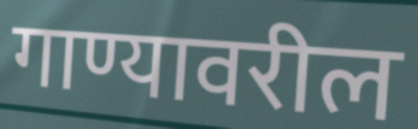
गाण्यावरील